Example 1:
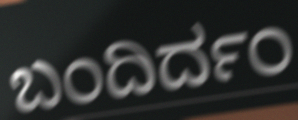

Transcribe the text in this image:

ಬಂದಿರ್ದಂ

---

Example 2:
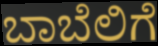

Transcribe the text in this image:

ಬಾಬೆಲಿಗೆ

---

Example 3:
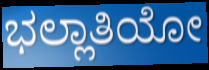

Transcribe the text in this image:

ಭಲ್ಲಾತಿಯೋ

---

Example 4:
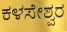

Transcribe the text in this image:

ಕಳಸೇಶ್ವರ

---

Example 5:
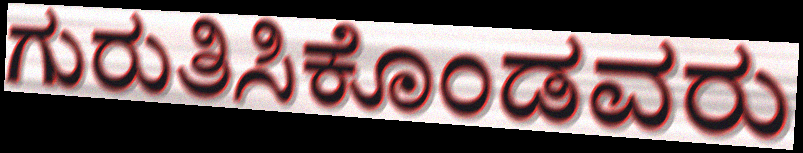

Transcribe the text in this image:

ಗುರುತಿಸಿಕೊಂಡವರು